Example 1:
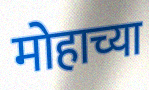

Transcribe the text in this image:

मोहाच्या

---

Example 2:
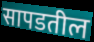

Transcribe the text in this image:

सापडतील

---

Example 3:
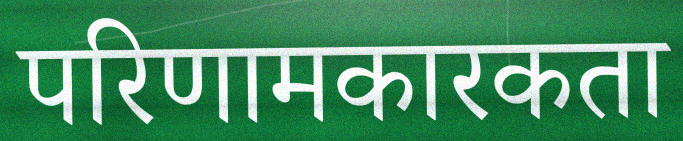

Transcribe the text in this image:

परिणामकारकता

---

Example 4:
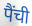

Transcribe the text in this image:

पैंची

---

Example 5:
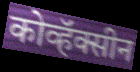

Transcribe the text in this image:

कोव्हॅक्सीन